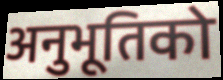
अनुभूतिको